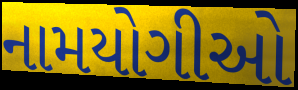
નામયોગીઓ